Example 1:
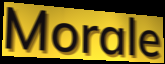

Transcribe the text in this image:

Morale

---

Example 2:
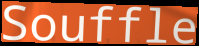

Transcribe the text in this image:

Souffle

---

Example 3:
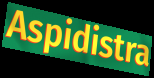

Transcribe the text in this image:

Aspidistra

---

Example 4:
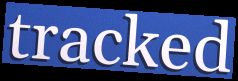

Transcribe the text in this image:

tracked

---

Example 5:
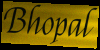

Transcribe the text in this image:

Bhopal